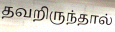
தவறிருந்தால்